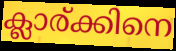
ക്ലാര്ക്കിനെ